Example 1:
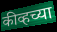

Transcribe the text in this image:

कीव्हच्या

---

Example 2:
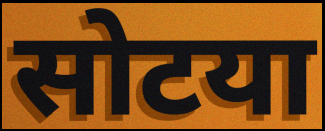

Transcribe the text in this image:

सोटया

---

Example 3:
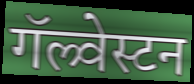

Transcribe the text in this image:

गॅल्वेस्टन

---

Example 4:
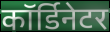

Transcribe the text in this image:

कॉर्डिनेटर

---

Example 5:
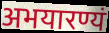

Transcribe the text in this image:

अभयारण्यं